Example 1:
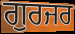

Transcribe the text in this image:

ਗੁਰਜਰ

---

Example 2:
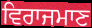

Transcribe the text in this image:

ਵਿਰਾਜਮਾਣ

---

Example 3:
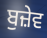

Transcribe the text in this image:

ਬੁਜ਼ੇਵ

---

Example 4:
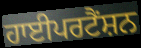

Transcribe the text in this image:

ਹਾਈਪਰਟੈਂਸ਼ਨ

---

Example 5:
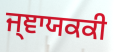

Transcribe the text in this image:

ਜ੍ਞਾਯਕਕੀ